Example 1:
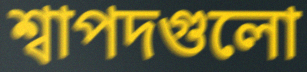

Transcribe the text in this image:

শ্বাপদগুলো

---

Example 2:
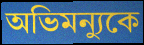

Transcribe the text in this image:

অভিমন্যুকে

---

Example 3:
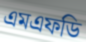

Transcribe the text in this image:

এমএফডি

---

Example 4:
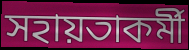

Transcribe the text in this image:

সহায়তাকর্মী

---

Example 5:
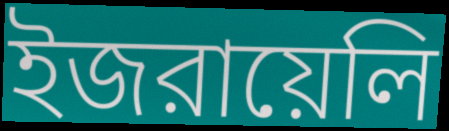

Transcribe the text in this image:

ইজরায়েলি